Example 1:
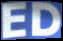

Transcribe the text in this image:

ED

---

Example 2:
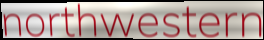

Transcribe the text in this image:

northwestern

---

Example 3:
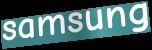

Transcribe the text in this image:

samsung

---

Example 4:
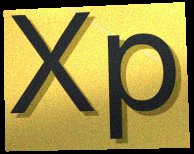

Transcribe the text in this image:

Xp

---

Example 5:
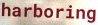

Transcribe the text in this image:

harboring